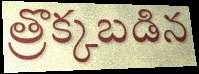
త్రొక్కబడిన